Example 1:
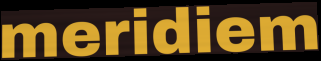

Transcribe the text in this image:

meridiem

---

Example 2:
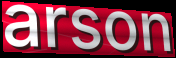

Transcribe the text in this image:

arson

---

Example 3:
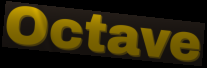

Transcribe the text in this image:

Octave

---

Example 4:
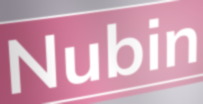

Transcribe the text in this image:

Nubin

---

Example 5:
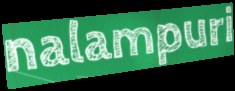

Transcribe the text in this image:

nalampuri